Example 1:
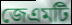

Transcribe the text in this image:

জেএমটি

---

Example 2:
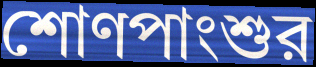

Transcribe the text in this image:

শোণপাংশুর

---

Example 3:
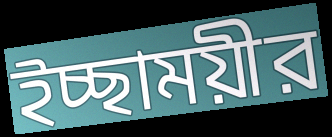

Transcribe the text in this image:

ইচ্ছাময়ীর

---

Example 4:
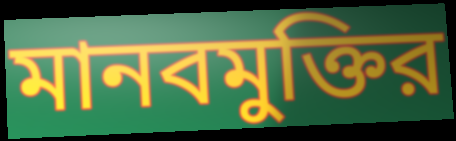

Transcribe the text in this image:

মানবমুক্তির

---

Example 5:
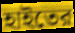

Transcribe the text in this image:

হাইতের